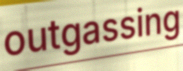
outgassing